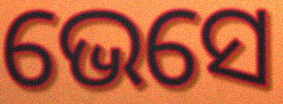
ଭେସେ